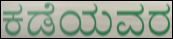
ಕಡೆಯವರ